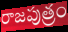
రాజపుత్రం